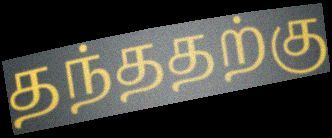
தந்ததற்கு